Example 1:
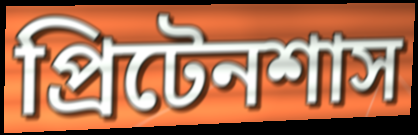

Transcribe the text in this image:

প্রিটেনশাস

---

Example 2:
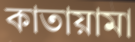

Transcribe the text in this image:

কাতায়ামা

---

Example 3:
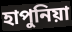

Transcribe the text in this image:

হাপুনিয়া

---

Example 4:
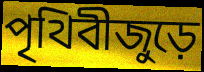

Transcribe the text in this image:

পৃথিবীজুড়ে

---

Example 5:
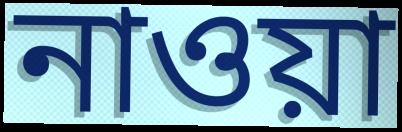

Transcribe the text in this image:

নাওয়া